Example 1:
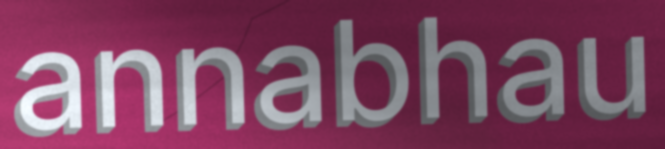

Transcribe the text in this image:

annabhau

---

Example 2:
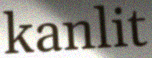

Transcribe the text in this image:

kanlit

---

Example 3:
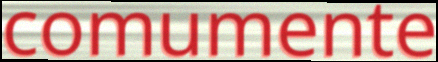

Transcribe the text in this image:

comumente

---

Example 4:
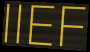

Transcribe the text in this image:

IIEF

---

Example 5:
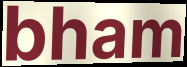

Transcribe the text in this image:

bham